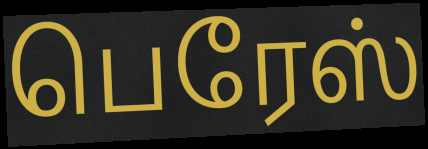
பெரேஸ்